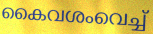
കൈവശംവെച്ച്